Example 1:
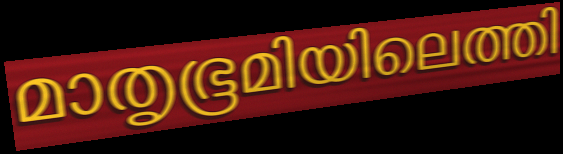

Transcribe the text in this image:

മാതൃഭൂമിയിലെത്തി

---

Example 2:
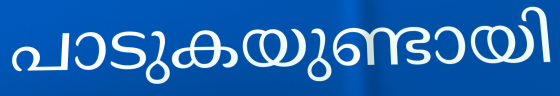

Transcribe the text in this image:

പാടുകയുണ്ടായി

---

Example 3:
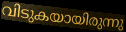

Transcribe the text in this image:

വിടുകയായിരുന്നു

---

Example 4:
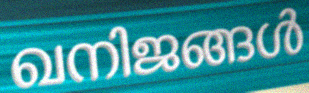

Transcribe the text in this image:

ഖനിജങ്ങൾ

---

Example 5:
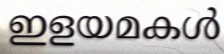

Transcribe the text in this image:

ഇളയമകൾ